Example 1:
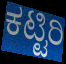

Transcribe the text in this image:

ಕಟ್ಟಿರಿ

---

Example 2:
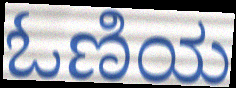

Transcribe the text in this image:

ಓಣಿಯ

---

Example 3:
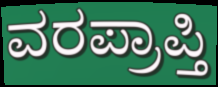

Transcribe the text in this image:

ವರಪ್ರಾಪ್ತಿ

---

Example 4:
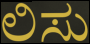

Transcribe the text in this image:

ಲಿಸು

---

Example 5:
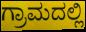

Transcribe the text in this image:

ಗ್ರಾಮದಲ್ಲಿ